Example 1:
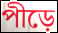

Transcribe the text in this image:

পীড়ে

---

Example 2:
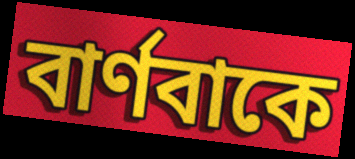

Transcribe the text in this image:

বার্ণবাকে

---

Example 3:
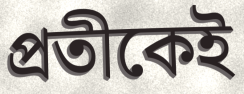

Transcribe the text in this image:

প্রতীকেই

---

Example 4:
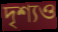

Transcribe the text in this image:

দৃশ্যও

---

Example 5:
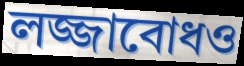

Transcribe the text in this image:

লজ্জাবোধও